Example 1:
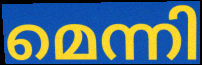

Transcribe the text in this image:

മെന്നി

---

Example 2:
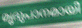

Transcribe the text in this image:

മൃദുപാനമായി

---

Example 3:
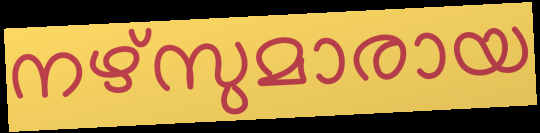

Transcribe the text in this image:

നഴ്സുമാരായ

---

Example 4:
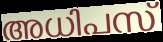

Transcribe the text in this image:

അധിപസ്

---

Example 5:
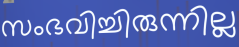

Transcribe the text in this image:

സംഭവിച്ചിരുന്നില്ല